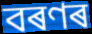
বৰণৰ